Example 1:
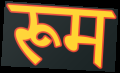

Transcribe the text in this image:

रूम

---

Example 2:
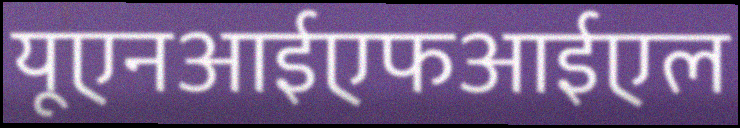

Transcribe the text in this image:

यूएनआईएफआईएल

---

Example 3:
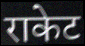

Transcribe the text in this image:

राकेट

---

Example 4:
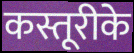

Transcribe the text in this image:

कस्तूरीके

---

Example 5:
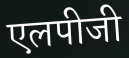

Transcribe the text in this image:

एलपीजी